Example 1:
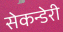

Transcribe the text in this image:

सेकन्डेरी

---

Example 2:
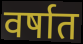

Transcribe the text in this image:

वर्षात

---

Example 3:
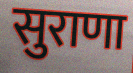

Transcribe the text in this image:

सुराणा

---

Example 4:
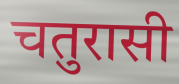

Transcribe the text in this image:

चतुरासी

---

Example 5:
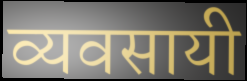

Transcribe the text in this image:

व्यवसायी